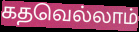
கதவெல்லாம்